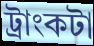
ট্রাংকটা